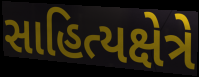
સાહિત્યક્ષેત્રે